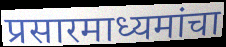
प्रसारमाध्यमांचा